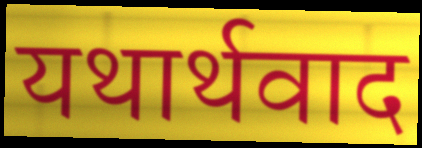
यथार्थवाद